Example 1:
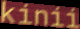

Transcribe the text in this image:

kinii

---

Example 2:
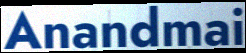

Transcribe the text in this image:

Anandmai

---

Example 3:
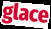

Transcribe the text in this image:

glace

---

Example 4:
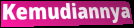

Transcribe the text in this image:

Kemudiannya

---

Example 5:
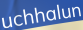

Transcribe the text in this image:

uchhalun